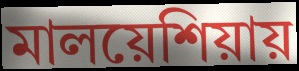
মালয়েশিয়ায়